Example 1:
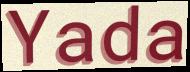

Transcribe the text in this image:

Yada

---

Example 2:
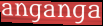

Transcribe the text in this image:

anganga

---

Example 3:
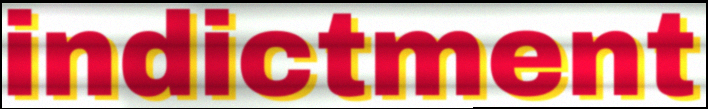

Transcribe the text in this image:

indictment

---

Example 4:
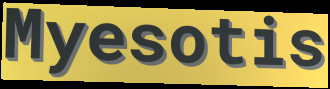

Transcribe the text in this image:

Myesotis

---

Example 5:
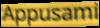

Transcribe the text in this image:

Appusami